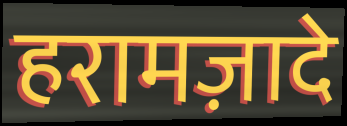
हरामज़ादे